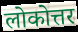
लोकोत्तर